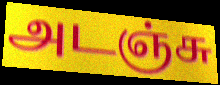
அடஞ்சு